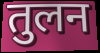
तुलन